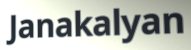
Janakalyan